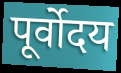
पूर्वोदय